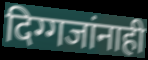
दिग्गजांनाही